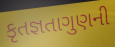
કૃતજ્ઞતાગુણની